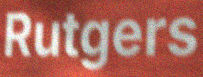
Rutgers